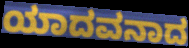
ಯಾದವನಾದ